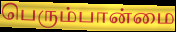
பெரும்பான்மை